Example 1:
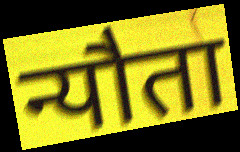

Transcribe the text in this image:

न्यौता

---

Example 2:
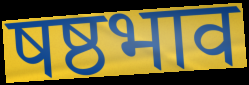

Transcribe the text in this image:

षष्ठभाव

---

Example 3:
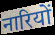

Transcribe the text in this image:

नारियों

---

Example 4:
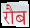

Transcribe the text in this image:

रौब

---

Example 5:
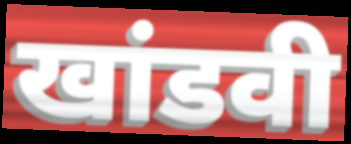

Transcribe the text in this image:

खांडवी